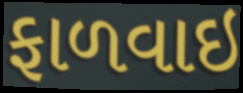
ફાળવાઇ